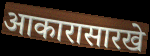
आकारासारखे